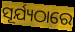
ସୂର୍ଯ୍ୟଠାରେ